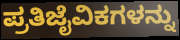
ಪ್ರತಿಜೈವಿಕಗಳನ್ನು